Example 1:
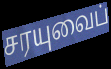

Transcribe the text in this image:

சரயுவைப்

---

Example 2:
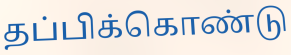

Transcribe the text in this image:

தப்பிக்கொண்டு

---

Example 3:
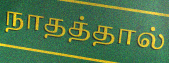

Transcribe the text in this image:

நாதத்தால்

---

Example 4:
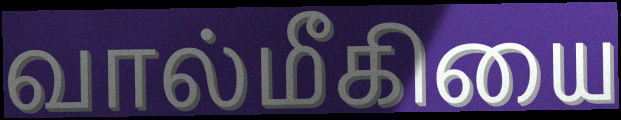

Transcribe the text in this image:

வால்மீகியை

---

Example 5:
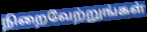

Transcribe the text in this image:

நிறைவேற்றுங்கள்